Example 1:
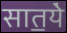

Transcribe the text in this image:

सा॒तये॑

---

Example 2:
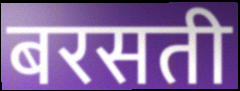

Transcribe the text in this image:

बरसती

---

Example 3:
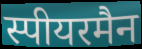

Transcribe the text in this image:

स्पीयरमैन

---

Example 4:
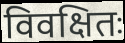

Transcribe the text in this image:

विवक्षितः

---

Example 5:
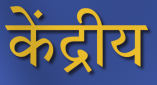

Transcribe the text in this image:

केंद्रीय